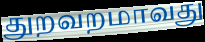
துறவறமாவது